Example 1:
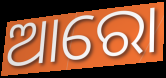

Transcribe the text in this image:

ଆରୋ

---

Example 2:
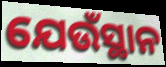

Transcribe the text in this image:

ଯେଉଁସ୍ଥାନ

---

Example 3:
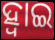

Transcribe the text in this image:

ହ୍ଵାଇ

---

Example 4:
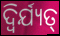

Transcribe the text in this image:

ଦ୍ୱିର୍ଯ୍ୟତ୍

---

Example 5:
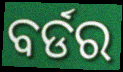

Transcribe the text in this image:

ବର୍ଡର